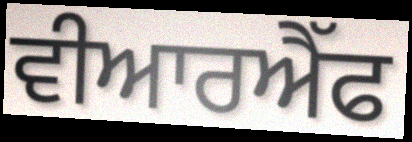
ਵੀਆਰਐੱਫ